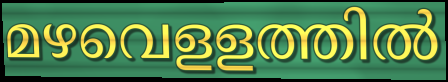
മഴവെളളത്തിൽ